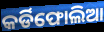
କର୍ଡିଫୋଲିଆ